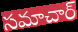
సమాచార్